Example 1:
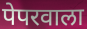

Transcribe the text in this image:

पेपरवाला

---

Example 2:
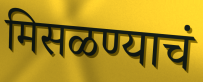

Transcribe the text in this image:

मिसळण्याचं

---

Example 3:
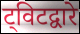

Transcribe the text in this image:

ट्विटद्वारे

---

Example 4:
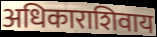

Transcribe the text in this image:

अधिकाराशिवाय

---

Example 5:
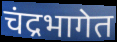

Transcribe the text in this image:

चंद्रभागेत